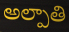
అల్పాతి